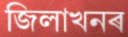
জিলাখনৰ